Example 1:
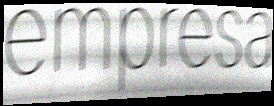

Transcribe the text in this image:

empresa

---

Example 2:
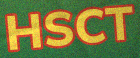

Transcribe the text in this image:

HSCT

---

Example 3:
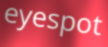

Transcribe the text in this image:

eyespot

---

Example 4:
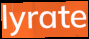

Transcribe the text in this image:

lyrate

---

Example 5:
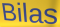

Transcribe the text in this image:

Bilas